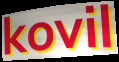
kovil